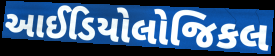
આઈડિયોલોજિકલ